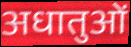
अधातुओं